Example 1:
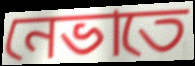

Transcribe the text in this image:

নেভাতে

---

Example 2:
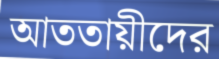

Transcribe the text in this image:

আততায়ীদের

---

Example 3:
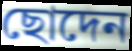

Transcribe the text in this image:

ছোদেন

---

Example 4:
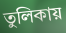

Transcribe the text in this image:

তুলিকায়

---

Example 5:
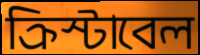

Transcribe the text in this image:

ক্রিস্টাবেল